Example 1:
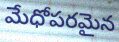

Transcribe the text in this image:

మేధోపరమైన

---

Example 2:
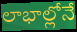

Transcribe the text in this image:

లాభాల్లోనే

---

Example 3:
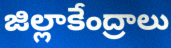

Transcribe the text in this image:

జిల్లాకేంద్రాలు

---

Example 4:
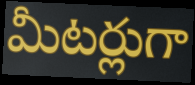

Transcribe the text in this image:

మీటర్లుగా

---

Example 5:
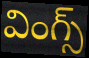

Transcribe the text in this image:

వింగ్స్